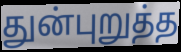
துன்புறுத்த